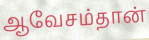
ஆவேசம்தான்